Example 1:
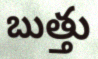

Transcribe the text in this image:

బుత్తు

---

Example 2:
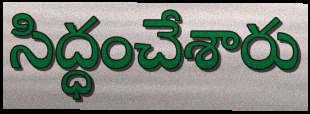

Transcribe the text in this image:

సిద్ధంచేశారు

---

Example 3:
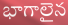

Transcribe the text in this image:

భాగాలైన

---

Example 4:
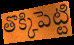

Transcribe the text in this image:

తొక్కిపెట్టి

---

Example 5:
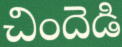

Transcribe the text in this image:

చిందెడి